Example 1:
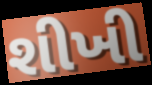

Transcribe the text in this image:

શીખી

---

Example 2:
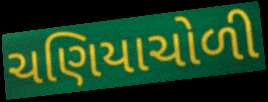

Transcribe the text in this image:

ચણિયાચોળી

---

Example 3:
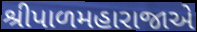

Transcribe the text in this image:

શ્રીપાળમહારાજાએ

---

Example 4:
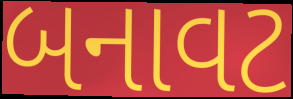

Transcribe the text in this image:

બનાવટ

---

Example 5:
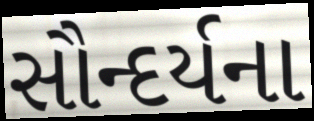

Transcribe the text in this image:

સૌન્દર્યના